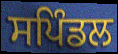
ਸਪਿੰਡਲ